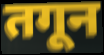
तगून